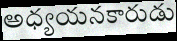
అధ్యయనకారుడు